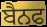
ਬੈਨਫ